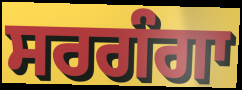
ਸਰਗੰਗਾ